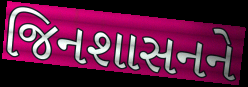
જિનશાસનને